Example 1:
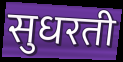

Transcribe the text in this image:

सुधरती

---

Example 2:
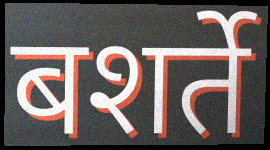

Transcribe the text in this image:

बशर्ते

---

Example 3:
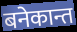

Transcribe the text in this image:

बनेकान्त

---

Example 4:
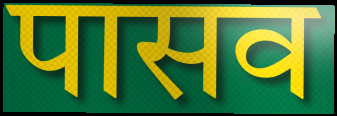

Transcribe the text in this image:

पासव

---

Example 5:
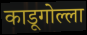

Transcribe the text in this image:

काडूगोल्ला